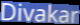
Divakar